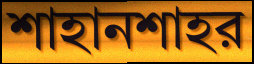
শাহানশাহর